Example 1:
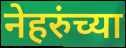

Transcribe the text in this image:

नेहरुंच्या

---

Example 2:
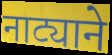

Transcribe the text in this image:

नाट्याने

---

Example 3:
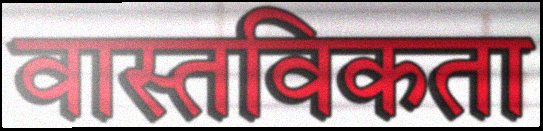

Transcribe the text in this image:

वास्तविकता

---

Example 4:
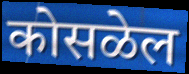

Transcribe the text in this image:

कोसळेल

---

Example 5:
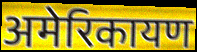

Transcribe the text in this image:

अमेरिकायण